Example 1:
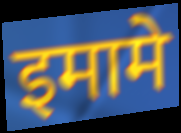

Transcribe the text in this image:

इमामे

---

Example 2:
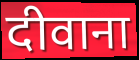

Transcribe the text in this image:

दीवाना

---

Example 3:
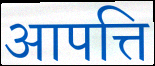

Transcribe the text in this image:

आपत्ति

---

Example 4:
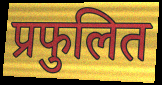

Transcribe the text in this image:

प्रफुलित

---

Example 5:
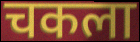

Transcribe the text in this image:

चकला